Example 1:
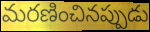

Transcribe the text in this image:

మరణించినప్పుడు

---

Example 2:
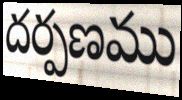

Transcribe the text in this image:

దర్పణము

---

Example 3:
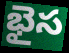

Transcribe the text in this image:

భైస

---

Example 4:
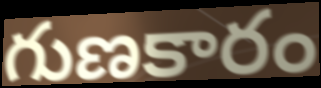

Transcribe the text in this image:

గుణకారం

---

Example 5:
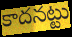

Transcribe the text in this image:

కాదనట్టు